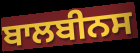
ਬਾਲਬੀਨਸ